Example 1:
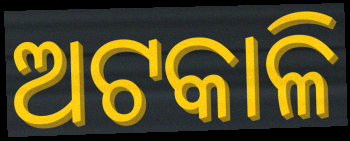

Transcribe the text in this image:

ଅଟକାଳି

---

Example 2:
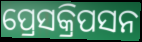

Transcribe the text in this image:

ପ୍ରେସକ୍ରିପସନ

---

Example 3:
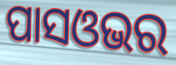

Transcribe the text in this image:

ପାସଓଭର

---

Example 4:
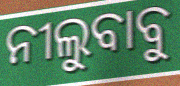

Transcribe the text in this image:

ନୀଲୁବାବୁ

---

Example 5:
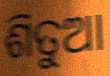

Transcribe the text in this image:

ଶିତୁଆ